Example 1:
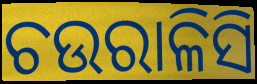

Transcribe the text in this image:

ଚଉରାଳିସି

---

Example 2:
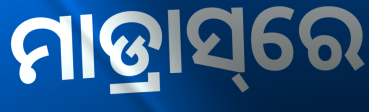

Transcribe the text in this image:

ମାଡ୍ରାସ୍‌ରେ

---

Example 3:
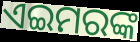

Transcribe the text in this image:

ଏଇମରଙ୍କ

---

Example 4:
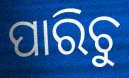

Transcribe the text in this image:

ପାରିଚୁ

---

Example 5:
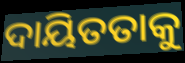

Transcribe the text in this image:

ଦାୟିତତାକୁ